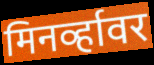
मिनर्व्हावर